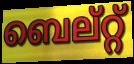
ബെല്റ്റ്